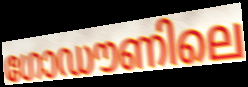
ഗോഡൗണിലെ